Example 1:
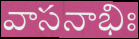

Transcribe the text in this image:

వాసనాభిః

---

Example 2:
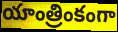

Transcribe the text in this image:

యాంత్రింకంగా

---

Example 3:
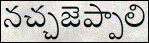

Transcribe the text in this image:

నచ్చజెప్పాలి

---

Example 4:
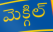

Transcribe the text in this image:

మెక్గిల్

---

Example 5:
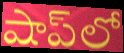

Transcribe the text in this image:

షాప్‌లో